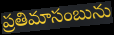
ప్రతిమాసంబును